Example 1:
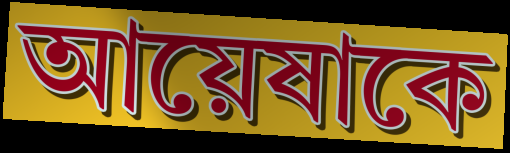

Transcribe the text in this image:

আয়েষাকে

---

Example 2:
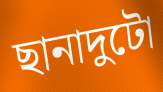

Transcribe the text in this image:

ছানাদুটো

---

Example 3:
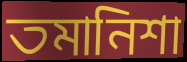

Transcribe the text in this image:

তমানিশা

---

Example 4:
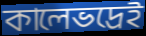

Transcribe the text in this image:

কালেভদ্রেই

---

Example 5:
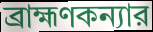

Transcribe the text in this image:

ব্রাহ্মণকন্যার